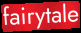
fairytale